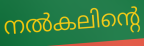
നൽകലിന്റെ